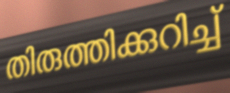
തിരുത്തിക്കുറിച്ച്